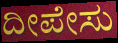
ದೀಪೇಸು